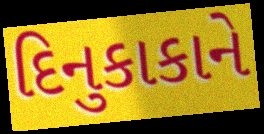
દિનુકાકાને